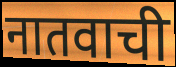
नातवाची